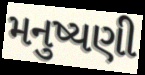
મનુષ્યણી